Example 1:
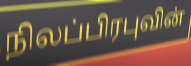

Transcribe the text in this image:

நிலப்பிரபுவின்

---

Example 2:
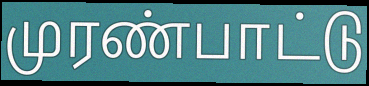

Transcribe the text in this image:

முரண்பாட்டு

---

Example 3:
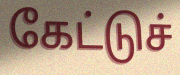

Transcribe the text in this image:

கேட்டுச்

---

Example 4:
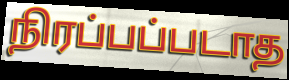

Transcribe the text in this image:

நிரப்பப்படாத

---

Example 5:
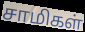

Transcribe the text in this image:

சாமிகள்